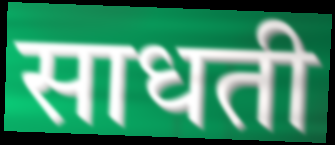
साधती